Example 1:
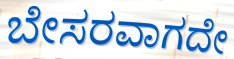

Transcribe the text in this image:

ಬೇಸರವಾಗದೇ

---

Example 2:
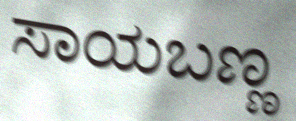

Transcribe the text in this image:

ಸಾಯಬಣ್ಣ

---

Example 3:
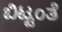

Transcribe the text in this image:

ಬಿಟ್ಟಂತೆ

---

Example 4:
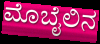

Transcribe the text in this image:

ಮೊಬೈಲಿನ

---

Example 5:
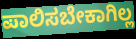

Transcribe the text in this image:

ಪಾಲಿಸಬೇಕಾಗಿಲ್ಲ